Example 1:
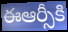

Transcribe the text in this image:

ఈఆర్సీకి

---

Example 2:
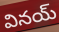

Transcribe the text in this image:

వినయ్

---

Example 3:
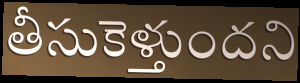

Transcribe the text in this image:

తీసుకెళ్తుందని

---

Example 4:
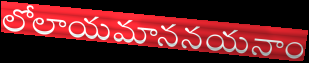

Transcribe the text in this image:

లోలాయమాననయనాం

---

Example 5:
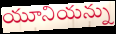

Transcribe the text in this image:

యూనియన్ను